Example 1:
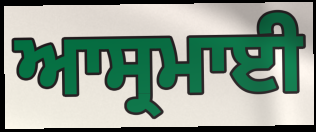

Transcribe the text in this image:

ਆਸ੍ਰਮਾਈ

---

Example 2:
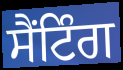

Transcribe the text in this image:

ਸੈਂਟਿੰਗ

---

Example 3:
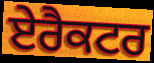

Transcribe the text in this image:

ਏਰੈਕਟਰ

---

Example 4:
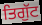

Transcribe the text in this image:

ਤਿਗੁੱਟ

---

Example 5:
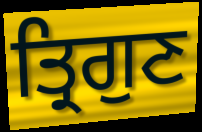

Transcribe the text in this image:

ਤ੍ਰਿਗੁਣ